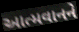
આત્મવાનને